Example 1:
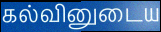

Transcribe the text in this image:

கல்வினுடைய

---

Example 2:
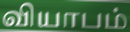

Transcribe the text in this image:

வியாபம்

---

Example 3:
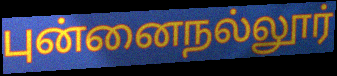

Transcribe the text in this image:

புன்னைநல்லூர்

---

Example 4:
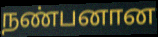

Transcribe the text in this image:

நண்பனான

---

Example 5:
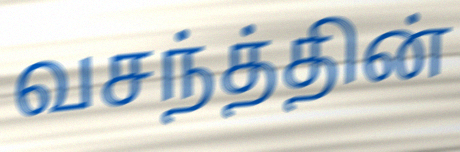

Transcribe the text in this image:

வசந்த்தின்